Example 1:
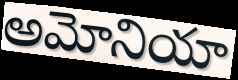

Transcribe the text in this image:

అమోనియా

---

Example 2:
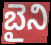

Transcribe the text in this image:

బైని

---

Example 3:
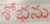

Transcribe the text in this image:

శోభను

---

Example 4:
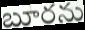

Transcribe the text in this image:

బూరను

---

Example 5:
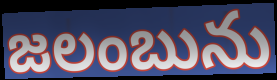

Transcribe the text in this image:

జలంబును